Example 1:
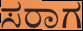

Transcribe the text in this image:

ಸರಾಗ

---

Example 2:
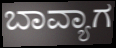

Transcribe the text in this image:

ಬಾವ್ಯಾಗ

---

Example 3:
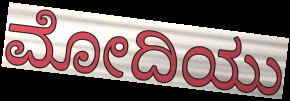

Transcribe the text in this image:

ಮೋದಿಯು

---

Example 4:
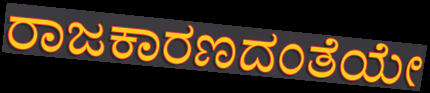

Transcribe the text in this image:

ರಾಜಕಾರಣದಂತೆಯೇ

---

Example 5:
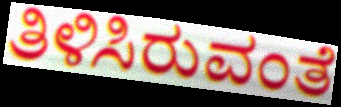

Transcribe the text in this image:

ತಿಳಿಸಿರುವಂತೆ